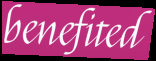
benefited